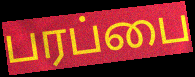
பரப்பை